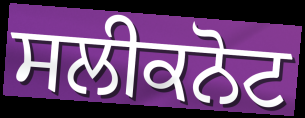
ਸਲੀਕਨੋਟ